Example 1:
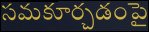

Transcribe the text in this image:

సమకూర్చడంపై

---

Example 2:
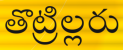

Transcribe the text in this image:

తొట్రిల్లరు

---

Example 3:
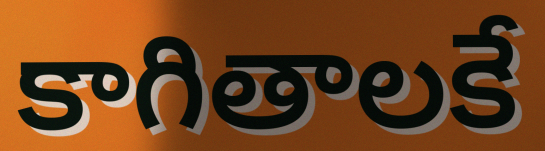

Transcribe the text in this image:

కాగితాలకే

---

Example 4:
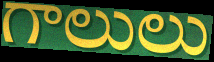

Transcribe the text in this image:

గాలులు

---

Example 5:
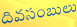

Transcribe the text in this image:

దివసంబులు